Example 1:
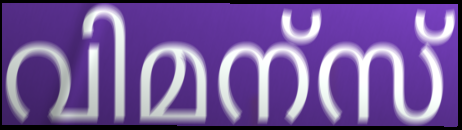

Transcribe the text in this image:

വിമന്സ്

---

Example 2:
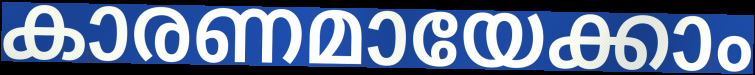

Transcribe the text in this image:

കാരണമായേക്കാം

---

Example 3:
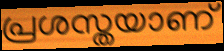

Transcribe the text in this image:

പ്രശസ്തയാണ്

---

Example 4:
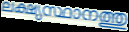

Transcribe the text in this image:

ലക്ഷ്യസ്ഥാനത്തു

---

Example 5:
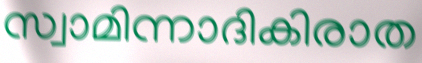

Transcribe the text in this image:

സ്വാമിന്നാദികിരാത